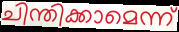
ചിന്തിക്കാമെന്ന്